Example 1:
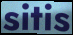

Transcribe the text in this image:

sitis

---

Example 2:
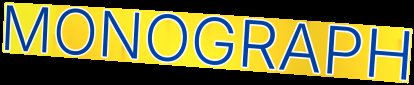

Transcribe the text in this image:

MONOGRAPH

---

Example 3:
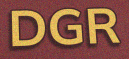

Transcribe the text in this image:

DGR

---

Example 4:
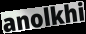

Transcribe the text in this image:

anolkhi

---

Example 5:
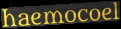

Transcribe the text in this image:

haemocoel